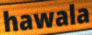
hawala